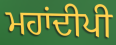
ਮਹਾਂਦੀਪੀ